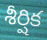
శీర్షిక